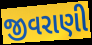
જીવરાણી